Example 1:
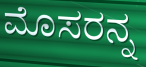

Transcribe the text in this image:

ಮೊಸರನ್ನ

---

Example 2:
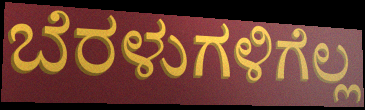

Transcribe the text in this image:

ಬೆರಳುಗಳಿಗೆಲ್ಲ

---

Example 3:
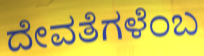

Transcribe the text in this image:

ದೇವತೆಗಳೆಂಬ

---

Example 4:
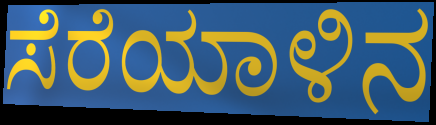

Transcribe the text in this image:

ಸೆರೆಯಾಳಿನ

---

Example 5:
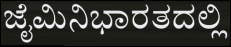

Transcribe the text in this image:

ಜೈಮಿನಿಭಾರತದಲ್ಲಿ